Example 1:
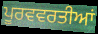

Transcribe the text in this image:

ਪੂਰਵਵਰਤੀਆਂ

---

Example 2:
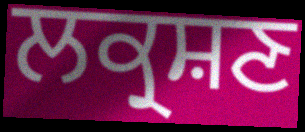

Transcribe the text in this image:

ਲਕ੍ਰਸ਼ਣ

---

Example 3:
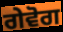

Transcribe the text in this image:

ਗੇਵੋਗ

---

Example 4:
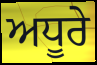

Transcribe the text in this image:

ਅਧੂਰੇ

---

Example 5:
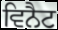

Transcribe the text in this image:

ਵਿਨੈਟ